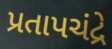
પ્રતાપચંદ્રે